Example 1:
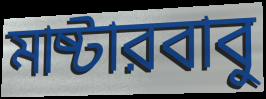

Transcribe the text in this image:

মাষ্টারবাবু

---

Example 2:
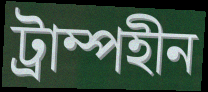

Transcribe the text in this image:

ট্রাম্পহীন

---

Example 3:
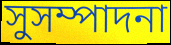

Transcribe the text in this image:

সুসম্পাদনা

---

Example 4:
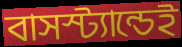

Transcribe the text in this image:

বাসস্ট্যান্ডেই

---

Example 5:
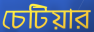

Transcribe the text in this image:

চেটিয়ার